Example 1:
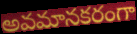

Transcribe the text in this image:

అవమానకరంగా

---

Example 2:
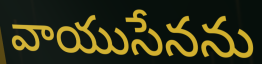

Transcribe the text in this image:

వాయుసేనను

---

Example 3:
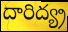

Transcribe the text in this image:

దారిద్య్ర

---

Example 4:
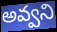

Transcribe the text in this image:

అవ్వని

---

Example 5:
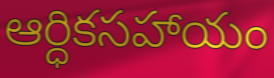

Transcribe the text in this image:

ఆర్ధికసహాయం